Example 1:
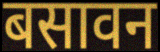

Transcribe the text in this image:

बसावन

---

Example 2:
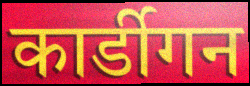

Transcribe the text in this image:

कार्डीगन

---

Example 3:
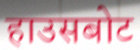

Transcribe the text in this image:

हाउसबोट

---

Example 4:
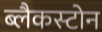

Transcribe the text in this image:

ब्‍लैकस्‍टोन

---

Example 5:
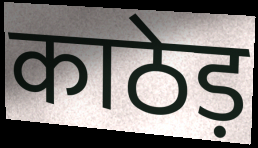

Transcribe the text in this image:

काठेड़